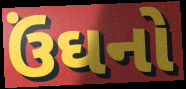
ઉંઘનો